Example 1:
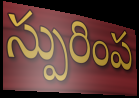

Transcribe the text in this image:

స్పురింప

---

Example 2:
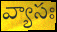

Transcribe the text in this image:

వ్యాసః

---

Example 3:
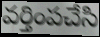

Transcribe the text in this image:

వర్తింపచేసి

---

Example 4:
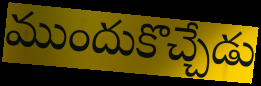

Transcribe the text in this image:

ముందుకొచ్చేడు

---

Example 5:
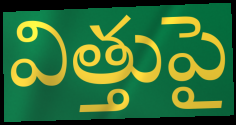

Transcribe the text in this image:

విత్తుపై